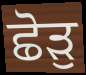
ਛੋੜੁ